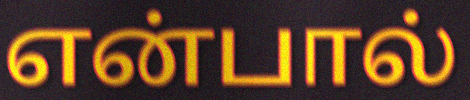
என்பால்